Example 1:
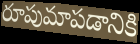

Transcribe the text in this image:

రూపుమాపడానికి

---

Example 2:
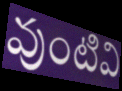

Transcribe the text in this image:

వుంటివి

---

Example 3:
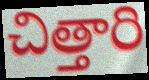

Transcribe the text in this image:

చిత్తారి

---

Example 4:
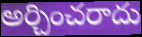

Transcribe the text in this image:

అర్చించరాదు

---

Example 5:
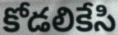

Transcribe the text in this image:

కోడలికేసి